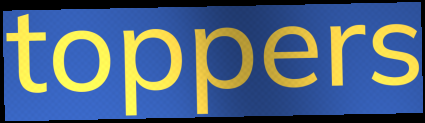
toppers